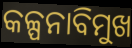
କଳ୍ପନାବିମୁଖ